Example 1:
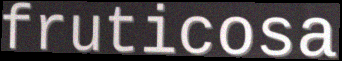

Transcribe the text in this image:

fruticosa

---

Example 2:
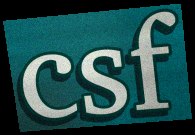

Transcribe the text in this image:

csf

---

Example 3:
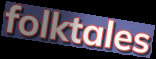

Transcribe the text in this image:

folktales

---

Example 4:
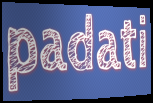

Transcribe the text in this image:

padati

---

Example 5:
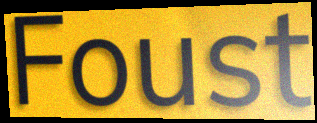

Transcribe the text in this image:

Foust